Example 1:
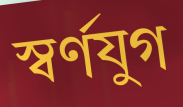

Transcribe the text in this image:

স্বর্ণযুগ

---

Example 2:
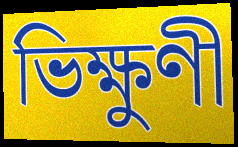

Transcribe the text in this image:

ভিক্ষুণী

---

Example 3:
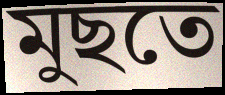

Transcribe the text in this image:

মুছতে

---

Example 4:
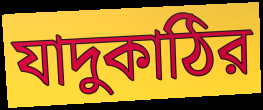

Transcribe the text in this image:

যাদুকাঠির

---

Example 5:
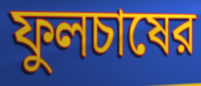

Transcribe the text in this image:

ফুলচাষের